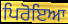
ਪਿਰੋਇਆ